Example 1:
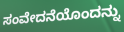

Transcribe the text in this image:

ಸಂವೇದನೆಯೊಂದನ್ನು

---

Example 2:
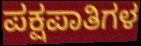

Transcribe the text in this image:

ಪಕ್ಷಪಾತಿಗಳ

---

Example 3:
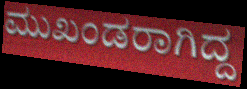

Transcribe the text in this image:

ಮುಖಂಡರಾಗಿದ್ದ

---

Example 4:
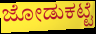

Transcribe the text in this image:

ಜೋಡುಕಟ್ಟೆ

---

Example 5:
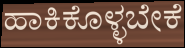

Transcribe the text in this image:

ಹಾಕಿಕೊಳ್ಳಬೇಕೆ